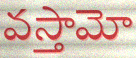
వస్తామో